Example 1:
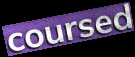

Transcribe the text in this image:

coursed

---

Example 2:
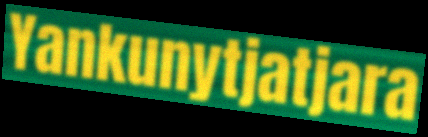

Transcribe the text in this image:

Yankunytjatjara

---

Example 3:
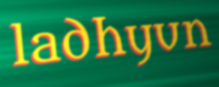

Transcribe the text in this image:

ladhyun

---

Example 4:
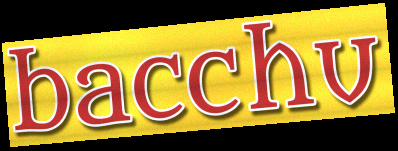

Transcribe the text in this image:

bacchu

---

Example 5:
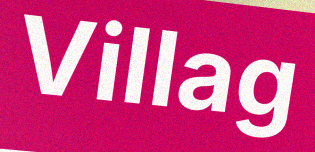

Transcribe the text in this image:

Villag